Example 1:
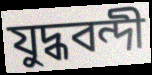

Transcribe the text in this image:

যুদ্ধবন্দী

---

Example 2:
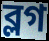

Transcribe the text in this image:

ব্লগ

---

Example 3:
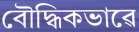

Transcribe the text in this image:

বৌদ্ধিকভাৱে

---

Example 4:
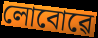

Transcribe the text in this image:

লোবোৱে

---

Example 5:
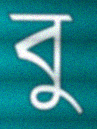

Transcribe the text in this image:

বু